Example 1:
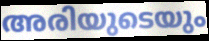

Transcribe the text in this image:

അരിയുടെയും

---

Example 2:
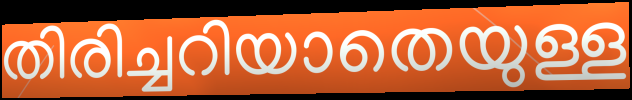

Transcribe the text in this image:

തിരിച്ചറിയാതെയുള്ള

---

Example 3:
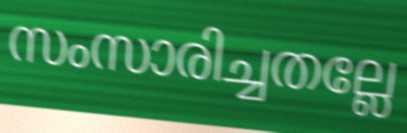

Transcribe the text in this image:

സംസാരിച്ചതല്ലേ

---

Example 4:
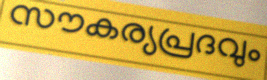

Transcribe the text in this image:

സൗകര്യപ്രദവും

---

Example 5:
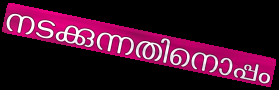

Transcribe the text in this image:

നടക്കുന്നതിനൊപ്പം